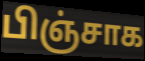
பிஞ்சாக